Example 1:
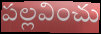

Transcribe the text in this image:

పల్లవించు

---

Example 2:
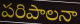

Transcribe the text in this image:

పరిపాలనా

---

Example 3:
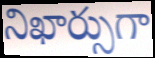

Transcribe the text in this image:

నిఖార్సుగా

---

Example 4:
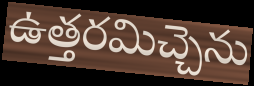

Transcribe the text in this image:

ఉత్తరమిచ్చెను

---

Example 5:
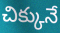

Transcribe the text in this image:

చిక్కునే